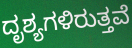
ದೃಶ್ಯಗಳಿರುತ್ತವೆ